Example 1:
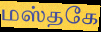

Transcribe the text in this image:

மஸ்தகே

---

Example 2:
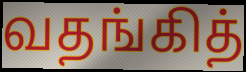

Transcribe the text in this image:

வதங்கித்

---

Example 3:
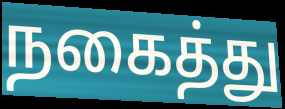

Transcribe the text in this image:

நகைத்து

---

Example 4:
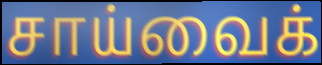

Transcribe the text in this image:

சாய்வைக்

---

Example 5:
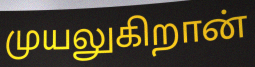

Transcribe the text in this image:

முயலுகிறான்